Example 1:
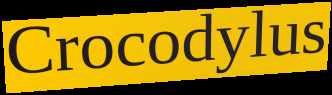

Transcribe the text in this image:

Crocodylus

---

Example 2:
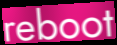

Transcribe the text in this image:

reboot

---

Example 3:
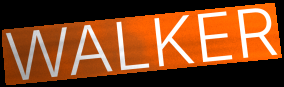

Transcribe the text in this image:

WALKER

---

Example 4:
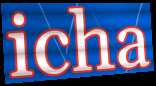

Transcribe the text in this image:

icha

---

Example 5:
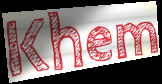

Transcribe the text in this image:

Khem